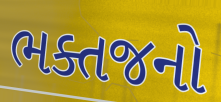
ભક્તજનો